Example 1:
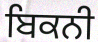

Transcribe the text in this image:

ਬਿਕਨੀ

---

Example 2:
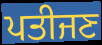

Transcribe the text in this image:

ਪਤੀਜਣ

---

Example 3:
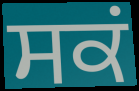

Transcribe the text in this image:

ਸਕਂ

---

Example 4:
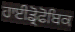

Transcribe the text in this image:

ਹਾਈਡ੍ਰੋਫੋਬਿਕ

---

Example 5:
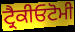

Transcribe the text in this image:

ਟ੍ਰੈਕੀਓਟੋਮੀ